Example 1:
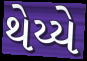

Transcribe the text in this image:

થેય્યે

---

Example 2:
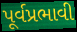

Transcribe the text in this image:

પૂર્વપ્રભાવી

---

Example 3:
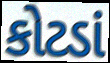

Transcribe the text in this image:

કોટડાં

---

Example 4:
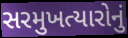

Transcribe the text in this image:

સરમુખત્યારોનું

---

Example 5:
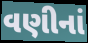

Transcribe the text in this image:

વણીનાં